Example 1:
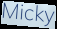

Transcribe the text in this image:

Micky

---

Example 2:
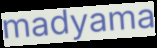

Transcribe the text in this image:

madyama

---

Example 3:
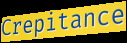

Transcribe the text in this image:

Crepitance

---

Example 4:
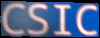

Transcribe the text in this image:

CSIC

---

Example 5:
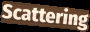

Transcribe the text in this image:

Scattering